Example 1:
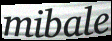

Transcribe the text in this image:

mibale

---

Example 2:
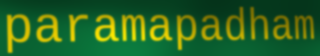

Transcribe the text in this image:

paramapadham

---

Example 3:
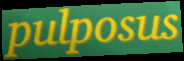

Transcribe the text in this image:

pulposus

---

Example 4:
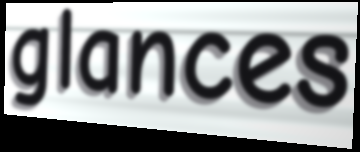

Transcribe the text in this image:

glances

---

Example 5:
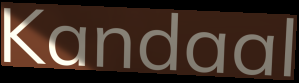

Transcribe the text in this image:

Kandaal